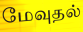
மேவுதல்